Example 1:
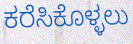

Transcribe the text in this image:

ಕರೆಸಿಕೊಳ್ಳಲು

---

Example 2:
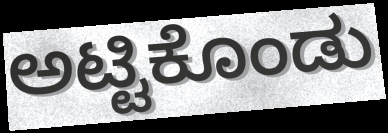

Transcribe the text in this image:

ಅಟ್ಟಿಕೊಂಡು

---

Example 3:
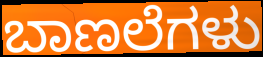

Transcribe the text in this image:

ಬಾಣಲೆಗಳು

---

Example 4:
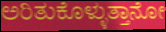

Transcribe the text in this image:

ಅರಿತುಕೊಳ್ಳುತ್ತಾನೋ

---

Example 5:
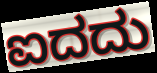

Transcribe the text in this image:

ಐದದು